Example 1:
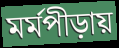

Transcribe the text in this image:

মর্মপীড়ায়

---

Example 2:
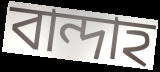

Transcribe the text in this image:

বান্দাহ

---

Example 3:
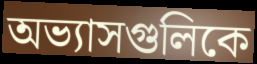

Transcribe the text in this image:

অভ্যাসগুলিকে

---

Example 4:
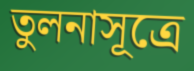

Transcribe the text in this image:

তুলনাসূত্রে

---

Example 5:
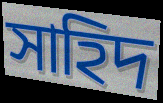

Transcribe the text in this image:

সাহিদ